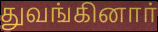
துவங்கினார்